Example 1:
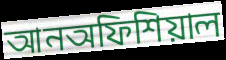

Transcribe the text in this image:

আনঅফিশিয়াল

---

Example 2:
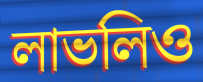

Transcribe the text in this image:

লাভলিও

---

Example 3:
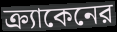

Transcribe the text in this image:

ক্র্যাকেনের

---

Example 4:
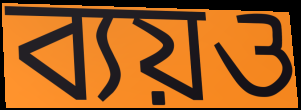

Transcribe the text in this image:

ব্যয়ও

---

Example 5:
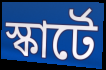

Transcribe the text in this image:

স্কার্টে